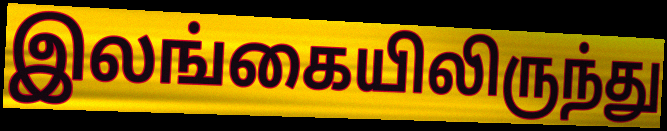
இலங்கையிலிருந்து